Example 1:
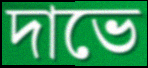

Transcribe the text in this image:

দাভে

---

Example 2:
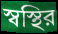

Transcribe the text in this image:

স্বস্থির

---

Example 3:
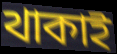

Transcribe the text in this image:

থাকাই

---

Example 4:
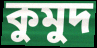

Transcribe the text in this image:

কুমুদ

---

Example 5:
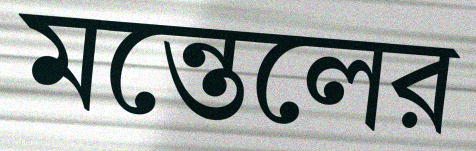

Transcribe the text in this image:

মন্তেলের